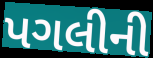
પગલીની